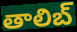
తాలిబ్